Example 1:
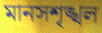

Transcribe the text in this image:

মানসশৃঙ্খল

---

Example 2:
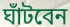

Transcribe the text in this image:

ঘাঁটবেন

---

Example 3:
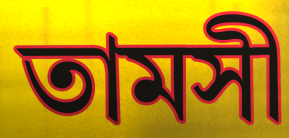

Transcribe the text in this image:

তামসী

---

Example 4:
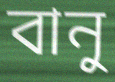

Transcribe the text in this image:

বানু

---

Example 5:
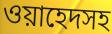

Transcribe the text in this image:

ওয়াহেদসহ